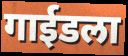
गाईडला